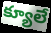
క్యూలే